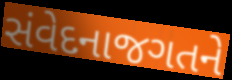
સંવેદનાજગતને